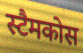
स्टैमकोस